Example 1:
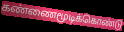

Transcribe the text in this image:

கண்ணைமூடிக்கொண்டு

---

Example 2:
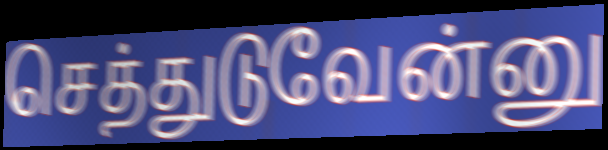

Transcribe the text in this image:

செத்துடுவேன்னு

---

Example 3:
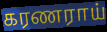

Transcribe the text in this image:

கரணராய்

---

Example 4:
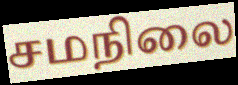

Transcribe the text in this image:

சமநிலை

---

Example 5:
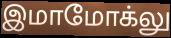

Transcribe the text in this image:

இமாமோக்லு